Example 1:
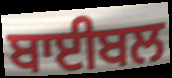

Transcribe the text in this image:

ਬਾਈਬਲ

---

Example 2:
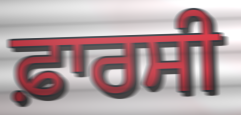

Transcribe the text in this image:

ਫ਼ਾਰਸੀ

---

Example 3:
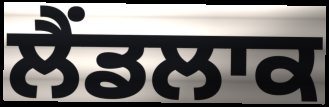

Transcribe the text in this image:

ਲੈਂਡਲਾਕ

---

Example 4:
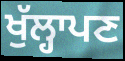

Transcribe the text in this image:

ਖੁੱਲ੍ਹਾਪਣ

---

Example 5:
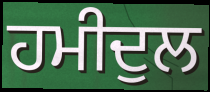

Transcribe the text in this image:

ਹਮੀਦੁਲ